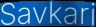
Savkari